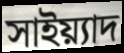
সাইয়্যাদ